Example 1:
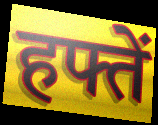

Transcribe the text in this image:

हफ्तें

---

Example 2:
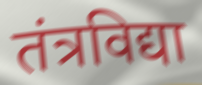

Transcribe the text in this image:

तंत्रविद्या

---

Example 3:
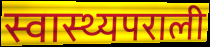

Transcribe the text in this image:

स्वास्थ्यपराली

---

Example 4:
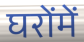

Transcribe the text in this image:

घरोंमें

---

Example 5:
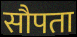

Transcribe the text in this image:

सौपता